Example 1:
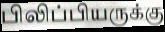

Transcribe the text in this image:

பிலிப்பியருக்கு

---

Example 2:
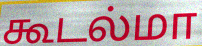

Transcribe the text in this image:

கூடல்மா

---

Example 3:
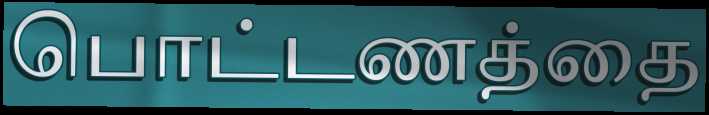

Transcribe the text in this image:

பொட்டணத்தை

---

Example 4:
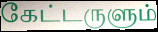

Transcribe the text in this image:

கேட்டருளும்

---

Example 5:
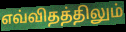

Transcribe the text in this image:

எவ்விதத்திலும்